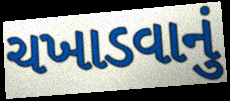
ચખાડવાનું